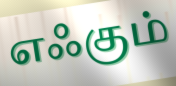
எஃகும்